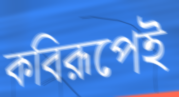
কবিরূপেই